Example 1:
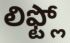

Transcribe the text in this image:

లిఫ్ట్లో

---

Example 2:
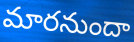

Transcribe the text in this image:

మారనుందా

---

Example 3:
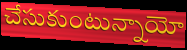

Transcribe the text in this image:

చేసుకుంటున్నాయో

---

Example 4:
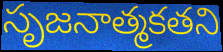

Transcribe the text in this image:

సృజనాత్మకతని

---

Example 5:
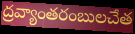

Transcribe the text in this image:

ద్రవ్యాంతరంబులచేత